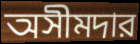
অসীমদার